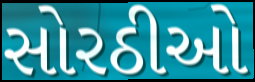
સોરઠીઓ